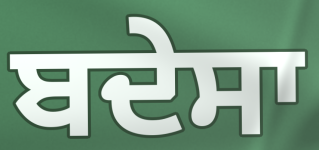
ਬਦੇਸਾ